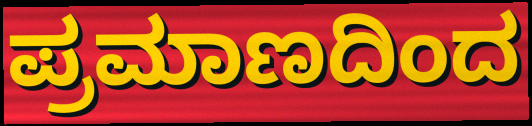
ಪ್ರಮಾಣದಿಂದ